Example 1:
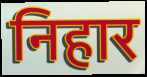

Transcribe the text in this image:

निहार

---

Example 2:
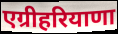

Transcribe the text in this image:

एग्रीहरियाणा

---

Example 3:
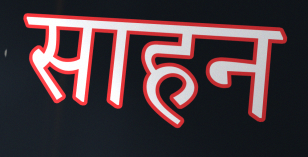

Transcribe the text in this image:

साहन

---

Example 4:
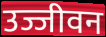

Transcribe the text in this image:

उज्जीवन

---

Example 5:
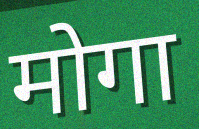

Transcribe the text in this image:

मोगा